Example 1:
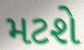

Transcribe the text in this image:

મટશે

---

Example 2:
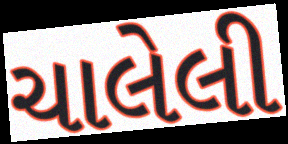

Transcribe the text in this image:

ચાલેલી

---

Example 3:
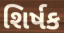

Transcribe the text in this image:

શિર્ષક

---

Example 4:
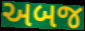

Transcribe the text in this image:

અબજ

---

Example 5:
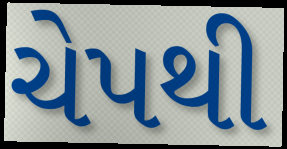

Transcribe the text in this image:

ચેપથી